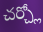
చర్చ్లో